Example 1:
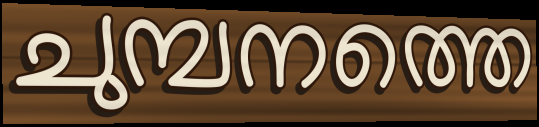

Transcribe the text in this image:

ചുമ്പനത്തെ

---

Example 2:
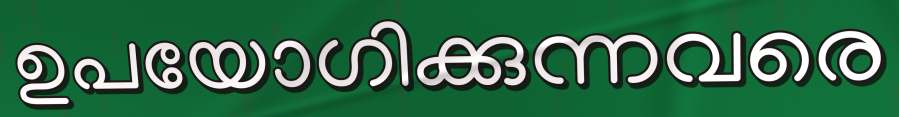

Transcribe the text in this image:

ഉപയോഗിക്കുന്നവരെ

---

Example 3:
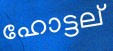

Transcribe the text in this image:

ഹോട്ടല്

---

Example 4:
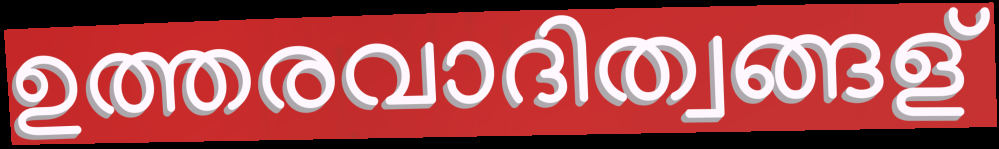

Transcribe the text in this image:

ഉത്തരവാദിത്വങ്ങള്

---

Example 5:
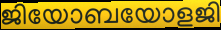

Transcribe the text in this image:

ജിയോബയോളജി